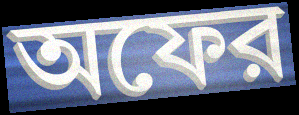
অফের